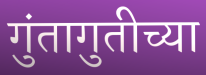
गुंतागुतीच्या